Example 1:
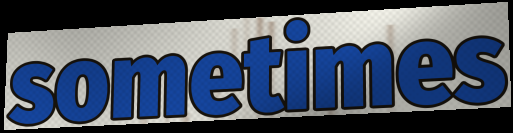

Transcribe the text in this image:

sometimes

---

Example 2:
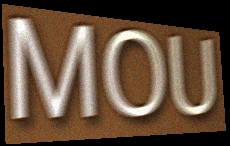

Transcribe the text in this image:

MOU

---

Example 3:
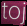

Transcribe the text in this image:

toj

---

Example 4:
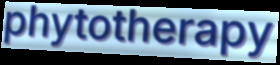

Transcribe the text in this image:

phytotherapy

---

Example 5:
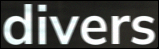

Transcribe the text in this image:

divers